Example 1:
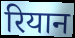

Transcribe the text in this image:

रियान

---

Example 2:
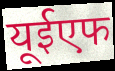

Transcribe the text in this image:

यूईएफ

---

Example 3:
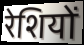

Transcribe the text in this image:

रेशियों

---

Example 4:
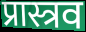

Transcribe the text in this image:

प्रास्त्रव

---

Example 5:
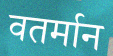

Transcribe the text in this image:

वतर्मान